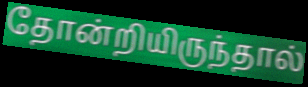
தோன்றியிருந்தால்